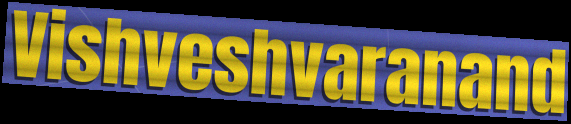
Vishveshvaranand